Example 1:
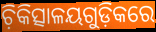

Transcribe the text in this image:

ଚ଼ିକିତ୍ସାଳୟଗୁଡ଼ିକରେ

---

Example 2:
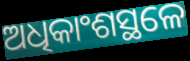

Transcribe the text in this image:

ଅଧିକାଂଶସ୍ଥଳେ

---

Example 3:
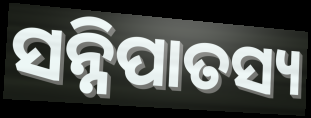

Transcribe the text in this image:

ସନ୍ନିପାତସ୍ୟ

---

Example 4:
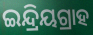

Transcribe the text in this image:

ଇନ୍ଦ୍ରିୟଗ୍ରାହ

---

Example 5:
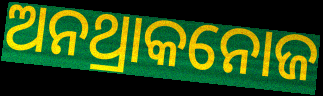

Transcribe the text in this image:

ଅନଥ୍ରାକନୋଜ